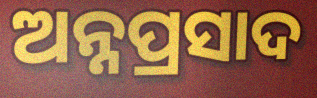
ଅନ୍ନପ୍ରସାଦ